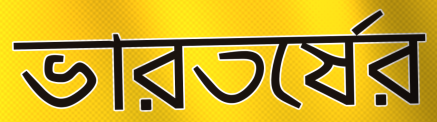
ভারতর্ষের